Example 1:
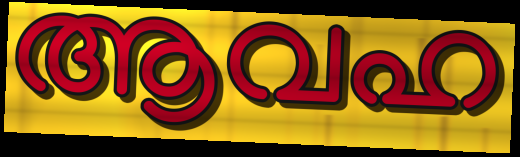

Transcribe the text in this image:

ആവഹ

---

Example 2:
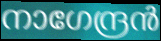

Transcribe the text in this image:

നാഗേന്ദ്രൻ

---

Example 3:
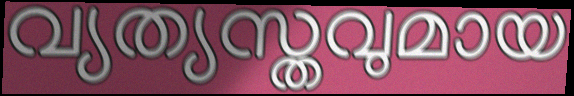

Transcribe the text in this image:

വ്യത്യസ്തവുമായ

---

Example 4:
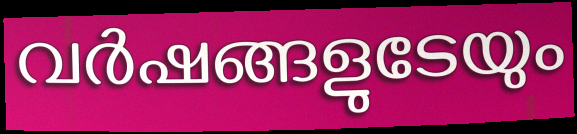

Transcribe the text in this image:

വർഷങ്ങളുടേയും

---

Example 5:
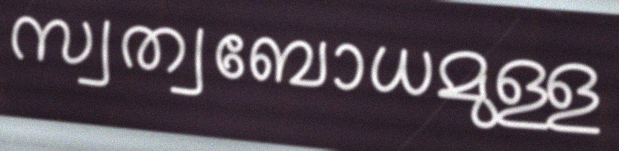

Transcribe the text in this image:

സ്വത്വബോധമുള്ള